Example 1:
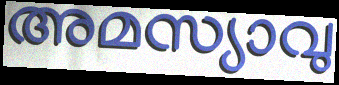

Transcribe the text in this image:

അമസ്യാവു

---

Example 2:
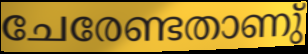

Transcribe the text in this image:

ചേരേണ്ടതാണു്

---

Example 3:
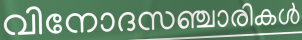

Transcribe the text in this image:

വിനോദസഞ്ചാരികൾ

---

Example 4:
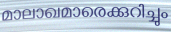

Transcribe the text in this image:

മാലാഖമാരെക്കുറിച്ചും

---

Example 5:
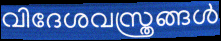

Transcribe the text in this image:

വിദേശവസ്ത്രങ്ങൾ